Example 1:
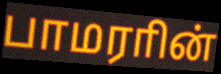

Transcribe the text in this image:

பாமரரின்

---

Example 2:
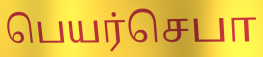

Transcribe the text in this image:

பெயர்செபா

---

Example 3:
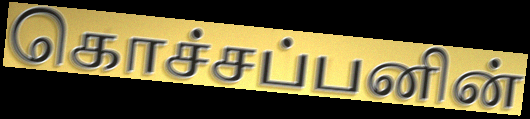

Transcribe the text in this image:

கொச்சப்பனின்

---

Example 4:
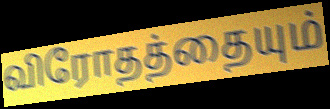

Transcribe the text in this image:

விரோதத்தையும்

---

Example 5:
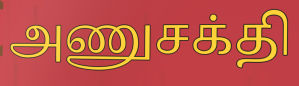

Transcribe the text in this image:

அணுசக்தி